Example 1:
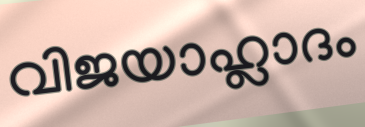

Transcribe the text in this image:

വിജയാഹ്ലാദം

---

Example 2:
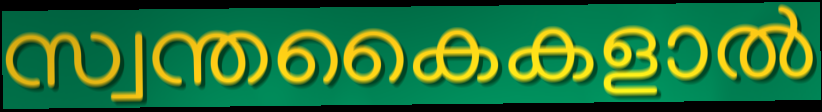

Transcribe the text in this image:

സ്വന്തകൈകളാൽ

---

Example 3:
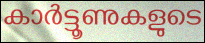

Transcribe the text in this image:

കാർട്ടൂണുകളുടെ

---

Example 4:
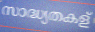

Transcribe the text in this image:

സാദ്ധ്യതകള്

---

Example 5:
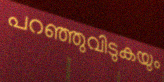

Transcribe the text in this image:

പറഞ്ഞുവിടുകയും